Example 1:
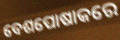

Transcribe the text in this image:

ବେଶପୋଷାକରେ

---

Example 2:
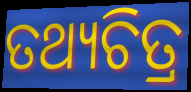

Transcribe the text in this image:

ତଥ୍ୟଚିତ୍ର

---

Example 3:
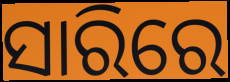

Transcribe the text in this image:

ସାରିରେ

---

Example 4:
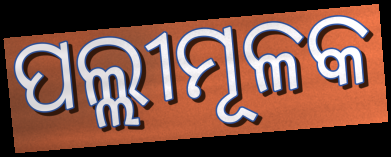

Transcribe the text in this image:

ପଲ୍ଲୀମୂଳକ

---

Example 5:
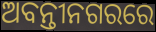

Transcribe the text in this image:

ଅବନ୍ତୀନଗରରେ